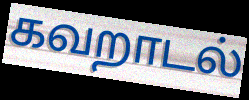
கவறாடல்